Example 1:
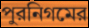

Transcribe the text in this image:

পুরনিগমের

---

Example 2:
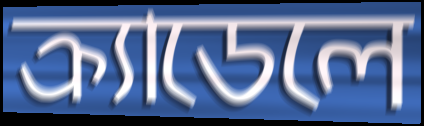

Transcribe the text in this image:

ক্র্যাডেলে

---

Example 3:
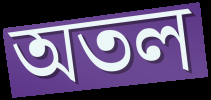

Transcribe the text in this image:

অতল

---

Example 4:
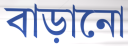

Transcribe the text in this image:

বাড়ানো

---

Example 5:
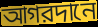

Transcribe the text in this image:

আগরদানে